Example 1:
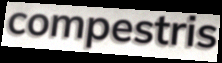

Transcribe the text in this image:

compestris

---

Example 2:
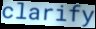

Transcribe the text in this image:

clarify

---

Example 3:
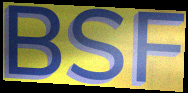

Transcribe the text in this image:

BSF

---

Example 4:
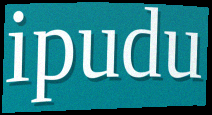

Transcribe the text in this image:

ipudu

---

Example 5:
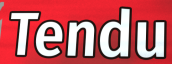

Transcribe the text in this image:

Tendu